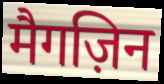
मैगज़िन